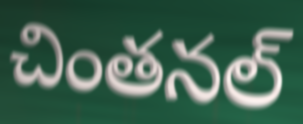
చింతనల్